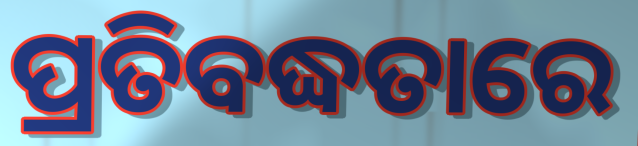
ପ୍ରତିବଦ୍ଧତାରେ